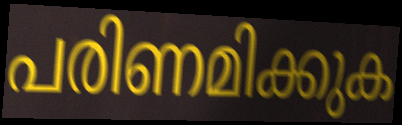
പരിണമിക്കുക